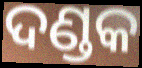
ଦଣ୍ଡକ